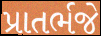
પ્રાતર્ભજે